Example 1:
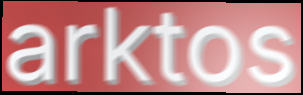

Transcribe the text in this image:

arktos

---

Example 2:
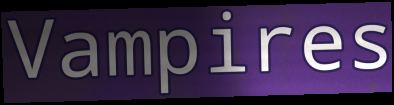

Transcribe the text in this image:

Vampires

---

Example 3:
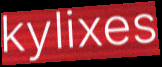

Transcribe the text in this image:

kylixes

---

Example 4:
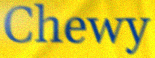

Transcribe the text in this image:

Chewy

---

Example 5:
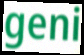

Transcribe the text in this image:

geni